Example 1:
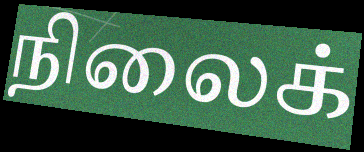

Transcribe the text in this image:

நிலைக்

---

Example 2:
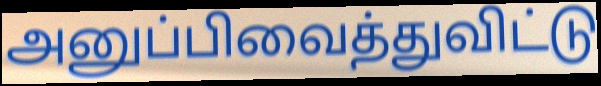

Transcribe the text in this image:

அனுப்பிவைத்துவிட்டு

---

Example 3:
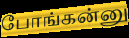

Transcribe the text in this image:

போங்கன்னு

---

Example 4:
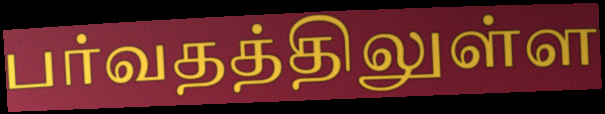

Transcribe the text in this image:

பர்வதத்திலுள்ள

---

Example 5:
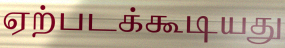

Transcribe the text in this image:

ஏற்படக்கூடியது